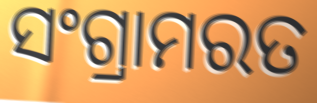
ସଂଗ୍ରାମରତ